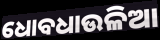
ଧୋବଧାଉଳିଆ